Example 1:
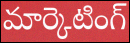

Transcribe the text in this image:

మార్కెటింగ్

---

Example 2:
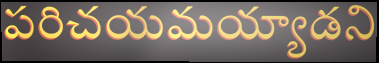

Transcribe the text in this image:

పరిచయమయ్యాడని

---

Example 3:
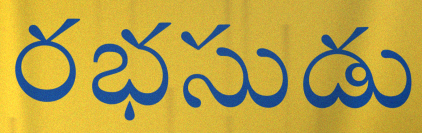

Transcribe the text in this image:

రభసుడు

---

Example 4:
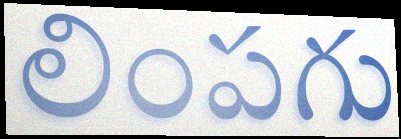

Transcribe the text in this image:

లింపగు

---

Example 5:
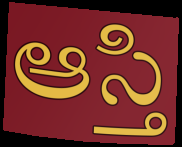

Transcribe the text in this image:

ఆస్తి